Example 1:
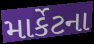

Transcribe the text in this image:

માર્કેટના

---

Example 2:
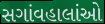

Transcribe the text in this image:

સગાંવહાલાંઓ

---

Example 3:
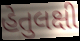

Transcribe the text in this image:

હેતુલક્ષી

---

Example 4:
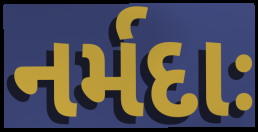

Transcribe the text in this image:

નર્મદાઃ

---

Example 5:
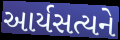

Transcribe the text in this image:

આર્યસત્યને